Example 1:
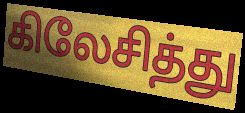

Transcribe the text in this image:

கிலேசித்து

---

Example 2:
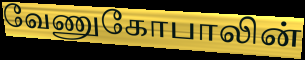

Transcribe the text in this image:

வேணுகோபாலின்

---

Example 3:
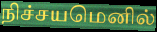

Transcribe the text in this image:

நிச்சயமெனில்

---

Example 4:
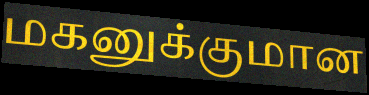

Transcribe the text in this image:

மகனுக்குமான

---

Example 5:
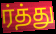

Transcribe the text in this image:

ர்த்து